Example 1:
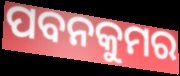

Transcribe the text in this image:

ପବନକୁମର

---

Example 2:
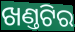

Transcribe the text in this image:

ଖଣ୍ତଟିର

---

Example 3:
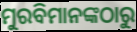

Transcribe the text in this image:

ମୁରବିମାନଙ୍କଠାରୁ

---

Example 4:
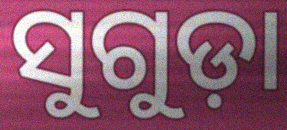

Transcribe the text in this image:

ସୁଗୁଡ଼ା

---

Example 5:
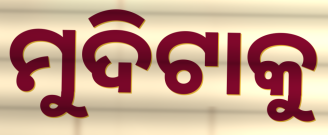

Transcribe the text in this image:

ମୁଦିଟାକୁ